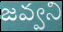
జవ్వని